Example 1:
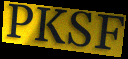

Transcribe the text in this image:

PKSF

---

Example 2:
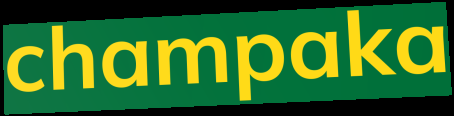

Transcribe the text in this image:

champaka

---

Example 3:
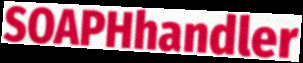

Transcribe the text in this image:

SOAPHhandler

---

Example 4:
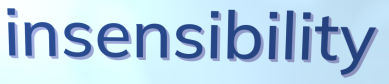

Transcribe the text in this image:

insensibility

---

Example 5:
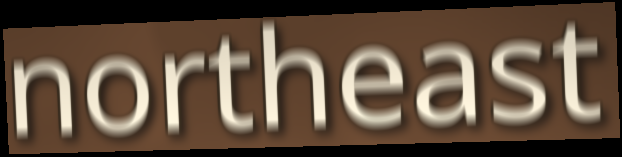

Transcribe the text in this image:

northeast